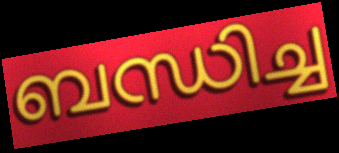
ബന്ധിച്ച